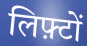
लिफ़्टों